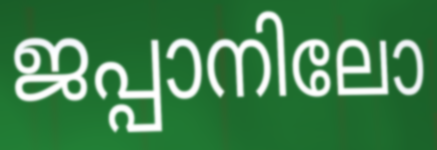
ജപ്പാനിലോ